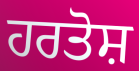
ਹਰਤੋਸ਼